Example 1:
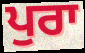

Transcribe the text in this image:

ਪੁਰਾ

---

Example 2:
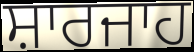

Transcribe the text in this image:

ਸ਼ਾਰਜਾਹ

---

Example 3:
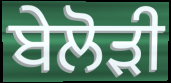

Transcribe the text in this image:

ਬੇਲੋੜੀ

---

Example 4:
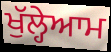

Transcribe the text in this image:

ਖੁੱਲ੍ਹੇਆਮ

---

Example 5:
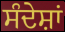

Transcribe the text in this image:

ਸੰਦੇਸ਼ਾਂ